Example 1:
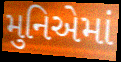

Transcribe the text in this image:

મુનિએમાં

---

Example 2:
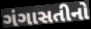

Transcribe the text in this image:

ગંગાસતીનો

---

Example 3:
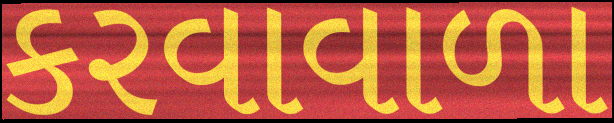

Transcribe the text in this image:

કરવાવાળા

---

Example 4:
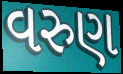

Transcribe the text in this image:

વરુણ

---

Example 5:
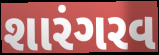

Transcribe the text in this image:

શારંગરવ